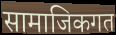
सामाजिकगत